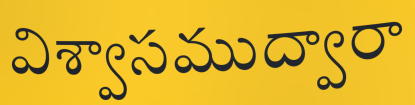
విశ్వాసముద్వారా